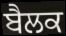
ਬੈਲਕ